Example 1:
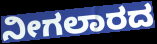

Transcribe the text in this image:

ನೀಗಲಾರದ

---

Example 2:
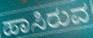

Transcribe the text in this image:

ಹಾಸಿರುವ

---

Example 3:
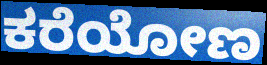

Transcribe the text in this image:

ಕರೆಯೋಣ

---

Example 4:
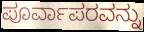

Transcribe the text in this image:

ಪೂರ್ವಾಪರವನ್ನು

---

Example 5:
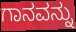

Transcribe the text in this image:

ಗಾನವನ್ನು